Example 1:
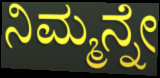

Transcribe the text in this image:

ನಿಮ್ಮನ್ನೇ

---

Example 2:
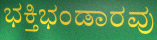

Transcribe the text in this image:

ಭಕ್ತಿಭಂಡಾರವು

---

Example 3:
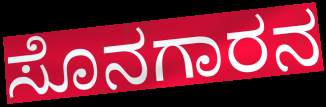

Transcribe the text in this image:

ಸೊನಗಾರನ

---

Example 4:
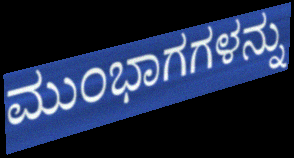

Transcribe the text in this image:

ಮುಂಭಾಗಗಳನ್ನು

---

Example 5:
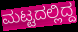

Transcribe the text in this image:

ಮಟ್ಟದಲ್ಲಿದ್ದ